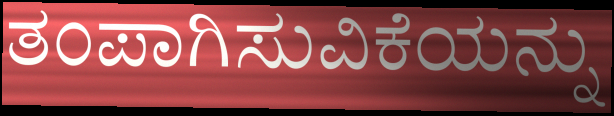
ತಂಪಾಗಿಸುವಿಕೆಯನ್ನು